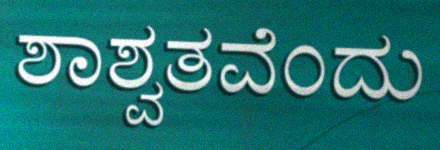
ಶಾಶ್ವತವೆಂದು